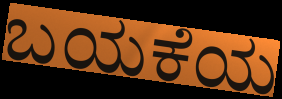
ಬಯಕೆಯ